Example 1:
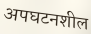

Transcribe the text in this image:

अपघटनशील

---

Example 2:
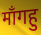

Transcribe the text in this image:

माँगहु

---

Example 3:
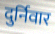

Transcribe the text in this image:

दुर्निवार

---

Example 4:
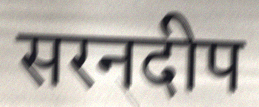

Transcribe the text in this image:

सरनदीप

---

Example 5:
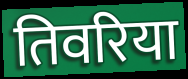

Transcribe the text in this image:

तिवरिया